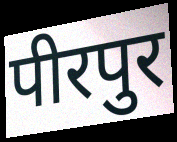
पीरपुर